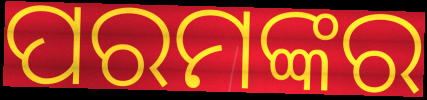
ପରମଙ୍କର